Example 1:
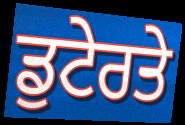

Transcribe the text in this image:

ਡੁਟੇਰਤੇ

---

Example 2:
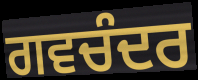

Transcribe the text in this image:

ਗਵਚੰਦਰ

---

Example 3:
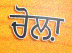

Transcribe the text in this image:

ਚੋਲ਼ਾ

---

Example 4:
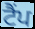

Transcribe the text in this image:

ਟੈਂਪ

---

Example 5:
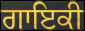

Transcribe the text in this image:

ਗਾਇਕੀ